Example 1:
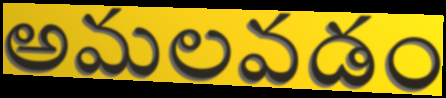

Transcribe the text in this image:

అమలవడం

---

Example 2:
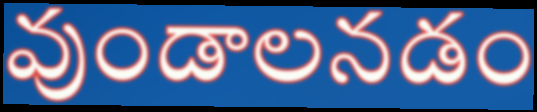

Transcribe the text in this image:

వుండాలనడం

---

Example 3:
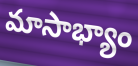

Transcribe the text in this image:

మాసాభ్యాం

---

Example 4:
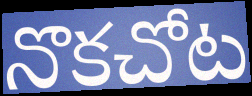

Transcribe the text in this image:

నొకచోట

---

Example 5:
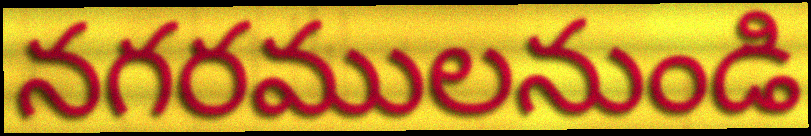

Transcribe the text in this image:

నగరములనుండి